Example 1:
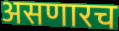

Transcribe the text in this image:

असणारच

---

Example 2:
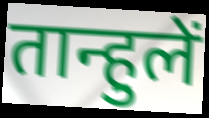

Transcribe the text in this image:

तान्हुलें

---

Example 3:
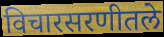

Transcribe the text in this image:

विचारसरणीतले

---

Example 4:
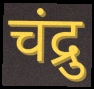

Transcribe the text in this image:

चंद्रु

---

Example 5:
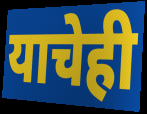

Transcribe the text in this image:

याचेही